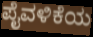
ಪೈವಳಿಕೆಯ